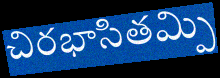
చిరభాసితమ్పి